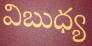
విబుధ్య